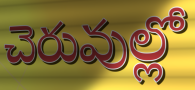
చెరువుల్లో